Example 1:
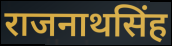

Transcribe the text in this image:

राजनाथसिंह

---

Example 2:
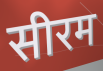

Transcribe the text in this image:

सीरम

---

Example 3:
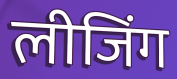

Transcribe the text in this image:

लीजिंग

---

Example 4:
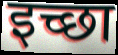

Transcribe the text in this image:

इच्छा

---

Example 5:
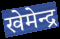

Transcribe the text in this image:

खेमेन्द्र